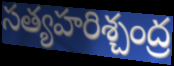
సత్యహరిశ్చంద్ర